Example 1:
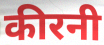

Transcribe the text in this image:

कीरनी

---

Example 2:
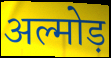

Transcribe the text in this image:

अल्मोड़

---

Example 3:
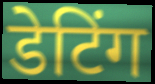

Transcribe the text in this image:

डेटिंग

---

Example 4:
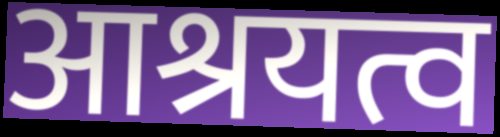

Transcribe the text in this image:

आश्रयत्व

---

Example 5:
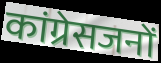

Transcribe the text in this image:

कांग्रेसजनों